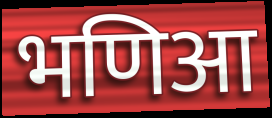
भणिआ